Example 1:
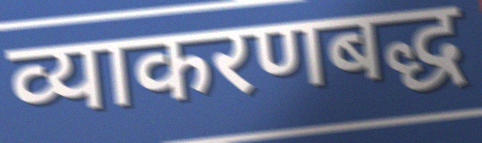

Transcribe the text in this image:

व्याकरणबद्ध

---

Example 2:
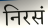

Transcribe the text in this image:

निरसं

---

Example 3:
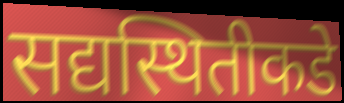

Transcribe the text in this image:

सद्यस्थितीकडे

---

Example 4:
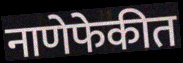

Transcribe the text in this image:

नाणेफेकीत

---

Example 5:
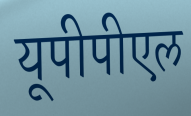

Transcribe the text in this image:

यूपीपीएल